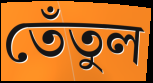
তেঁতুল